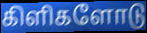
கிளிகளோடு